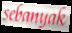
sebanyak